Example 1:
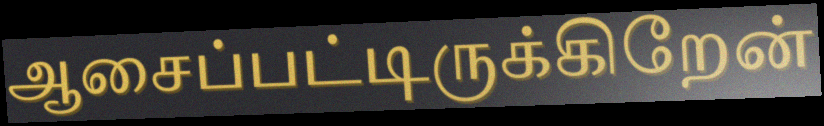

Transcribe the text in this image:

ஆசைப்பட்டிருக்கிறேன்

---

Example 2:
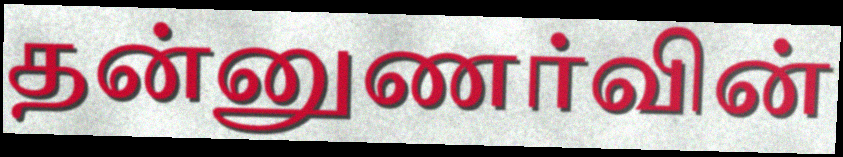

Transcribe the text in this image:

தன்னுணர்வின்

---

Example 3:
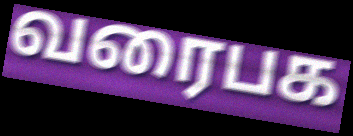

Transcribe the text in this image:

வரைபக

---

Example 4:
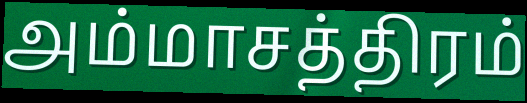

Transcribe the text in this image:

அம்மாசத்திரம்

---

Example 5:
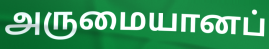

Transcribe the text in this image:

அருமையானப்